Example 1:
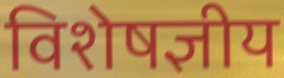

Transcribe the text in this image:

विशेषज्ञीय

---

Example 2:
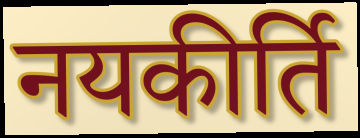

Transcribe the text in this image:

नयकीर्ति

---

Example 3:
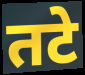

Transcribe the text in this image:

तटे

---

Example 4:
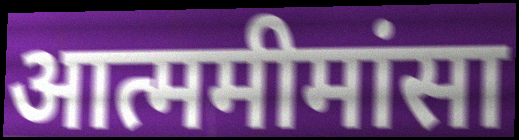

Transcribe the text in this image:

आत्ममीमांसा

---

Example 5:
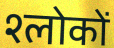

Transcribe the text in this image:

श्लोकों